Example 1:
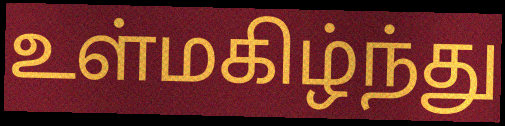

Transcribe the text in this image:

உள்மகிழ்ந்து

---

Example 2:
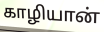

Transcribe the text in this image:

காழியான்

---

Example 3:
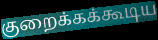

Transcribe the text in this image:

குறைக்கக்கூடிய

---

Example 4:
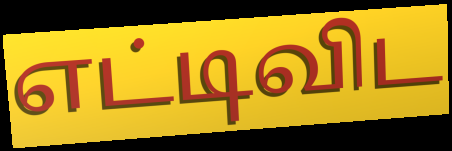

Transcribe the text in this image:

எட்டிவிட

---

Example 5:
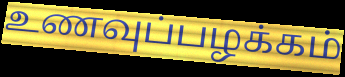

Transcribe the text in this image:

உணவுப்பழக்கம்